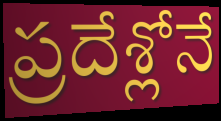
ప్రదేశ్లోనే